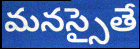
మనస్సైతే